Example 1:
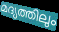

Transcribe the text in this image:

മദ്യത്തിലും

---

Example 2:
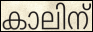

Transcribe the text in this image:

കാലിന്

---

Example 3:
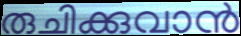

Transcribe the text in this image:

രുചിക്കുവാൻ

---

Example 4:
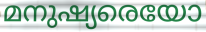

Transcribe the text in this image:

മനുഷ്യരെയോ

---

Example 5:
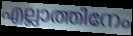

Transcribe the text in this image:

എല്ലാത്തിനേം